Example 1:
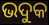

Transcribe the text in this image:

ଭଦୁକ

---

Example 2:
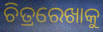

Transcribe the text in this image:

ଚିତ୍ରରେଖାକୁ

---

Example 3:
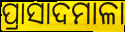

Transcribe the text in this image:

ପ୍ରାସାଦମାଳା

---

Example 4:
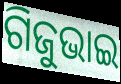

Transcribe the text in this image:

ଗିଜୁଭାଇ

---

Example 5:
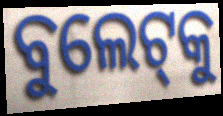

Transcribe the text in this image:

ବୁଲେଟ୍‌କୁ